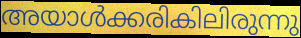
അയാൾക്കരികിലിരുന്നു